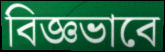
বিজ্ঞভাবে